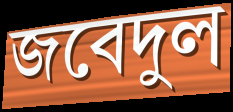
জবেদুল